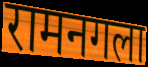
रामनगला